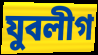
যুবলীগ